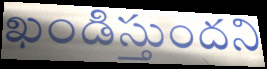
ఖండిస్తుందని